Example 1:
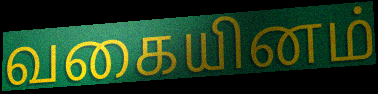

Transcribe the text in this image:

வகையினம்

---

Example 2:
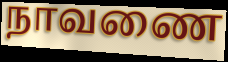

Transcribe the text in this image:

நாவணை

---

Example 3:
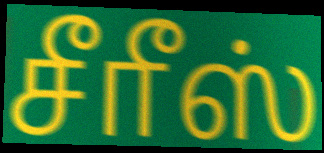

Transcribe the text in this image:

சீரீஸ்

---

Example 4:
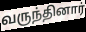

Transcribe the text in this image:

வருந்தினார்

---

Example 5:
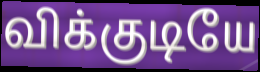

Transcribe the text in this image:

விக்குடியே